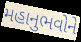
મહાનુભવોને